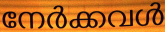
നേർക്കവൾ